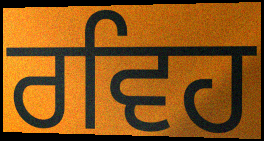
ਰਵਿਹ